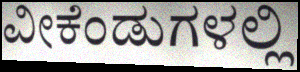
ವೀಕೆಂಡುಗಳಲ್ಲಿ